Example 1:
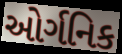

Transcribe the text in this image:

ઓર્ગનિક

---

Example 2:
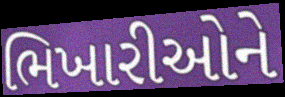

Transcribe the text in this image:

ભિખારીઓને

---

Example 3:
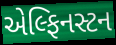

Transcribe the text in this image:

એલ્ફિનસ્ટન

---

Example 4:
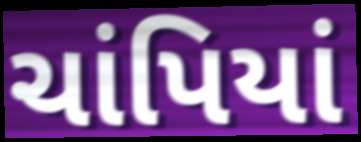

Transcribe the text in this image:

ચાંપિયાં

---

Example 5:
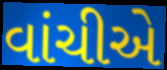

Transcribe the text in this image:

વાંચીએ